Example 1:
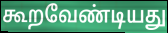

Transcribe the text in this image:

கூறவேண்டியது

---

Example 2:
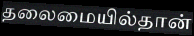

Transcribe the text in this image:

தலைமையில்தான்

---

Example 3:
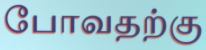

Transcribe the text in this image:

போவதற்கு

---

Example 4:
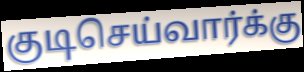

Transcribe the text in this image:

குடிசெய்வார்க்கு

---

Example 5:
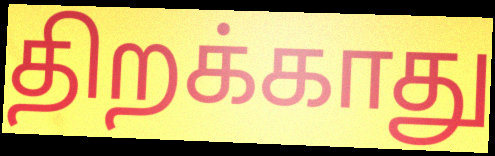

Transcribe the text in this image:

திறக்காது